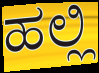
ಹಲ್ಲಿ